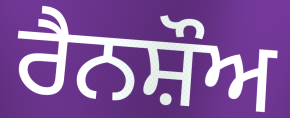
ਰੈਨਸ਼ੌਅ